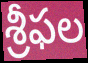
శ్రీఫల